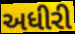
અધીરી